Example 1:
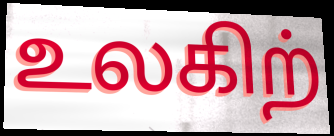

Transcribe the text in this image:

உலகிற்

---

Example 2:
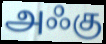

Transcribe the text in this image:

அஃகு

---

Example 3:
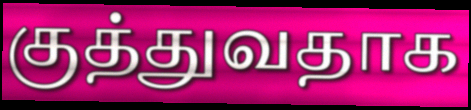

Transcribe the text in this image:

குத்துவதாக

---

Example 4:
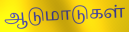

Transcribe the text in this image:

ஆடுமாடுகள்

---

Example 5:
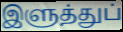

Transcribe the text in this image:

இளுத்துப்